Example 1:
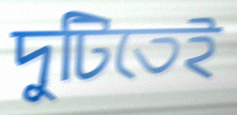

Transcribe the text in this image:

দুটিতেই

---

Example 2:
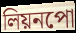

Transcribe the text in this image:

লিয়নপো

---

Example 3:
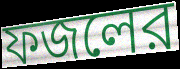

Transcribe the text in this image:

ফজলের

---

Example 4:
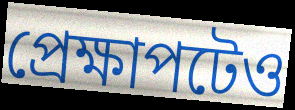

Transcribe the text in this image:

প্রেক্ষাপটেও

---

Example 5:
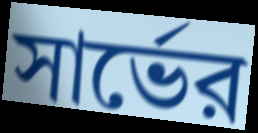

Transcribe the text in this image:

সার্ভের